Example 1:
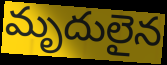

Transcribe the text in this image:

మృదులైన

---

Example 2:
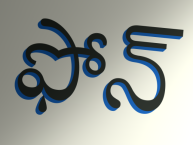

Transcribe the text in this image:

ఫోన్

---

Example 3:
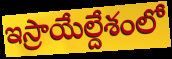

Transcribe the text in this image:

ఇస్రాయేల్దేశంలో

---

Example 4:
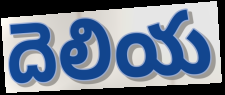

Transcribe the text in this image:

దెలియ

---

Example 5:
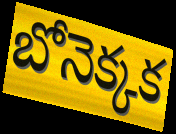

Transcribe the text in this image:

బోనెక్కక